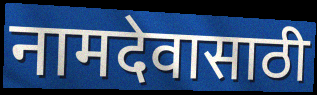
नामदेवासाठी